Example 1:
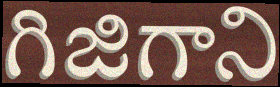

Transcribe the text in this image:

గిజిగాని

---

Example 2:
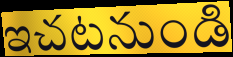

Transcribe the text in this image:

ఇచటనుండి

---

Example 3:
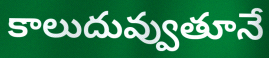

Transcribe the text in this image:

కాలుదువ్వుతూనే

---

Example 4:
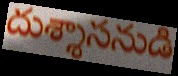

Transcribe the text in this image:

దుశ్శాసనుడి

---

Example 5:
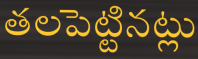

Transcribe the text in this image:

తలపెట్టినట్లు